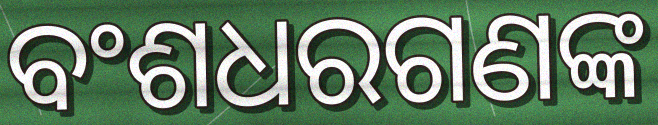
ବଂଶଧରଗଣଙ୍କ